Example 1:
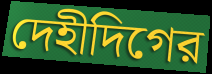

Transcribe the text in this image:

দেহীদিগের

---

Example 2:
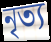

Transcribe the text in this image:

নৃত্য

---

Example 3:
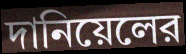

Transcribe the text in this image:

দানিয়েলের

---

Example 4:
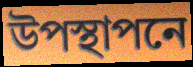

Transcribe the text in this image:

উপস্থাপনে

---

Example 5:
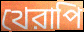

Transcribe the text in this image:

থেরাপি